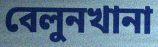
বেলুনখানা